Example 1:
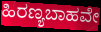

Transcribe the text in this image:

ಹಿರಣ್ಯಬಾಹವೇ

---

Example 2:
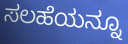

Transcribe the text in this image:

ಸಲಹೆಯನ್ನೂ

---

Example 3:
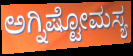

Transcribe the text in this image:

ಅಗ್ನಿಷ್ಟೋಮಸ್ಯ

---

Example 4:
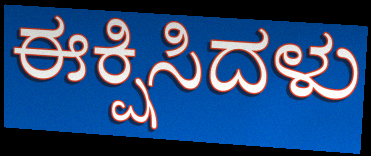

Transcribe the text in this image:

ಈಕ್ಷಿಸಿದಳು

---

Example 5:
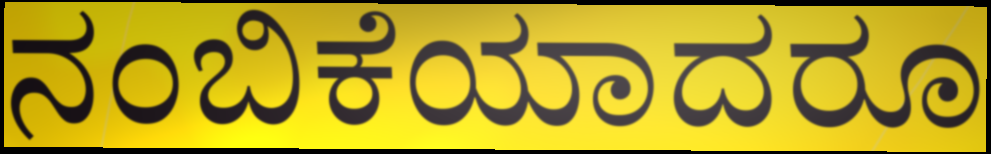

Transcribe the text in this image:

ನಂಬಿಕೆಯಾದರೂ